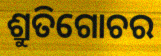
ଶ୍ରୁତିଗୋଚର